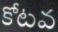
కోటవ